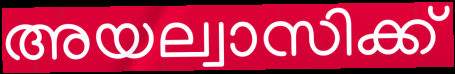
അയല്വാസിക്ക്